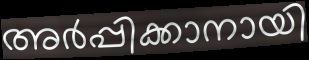
അർപ്പിക്കാനായി